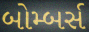
બોમ્બર્સ